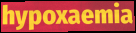
hypoxaemia